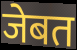
जेबत